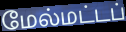
மேல்மட்டப்